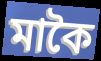
মাকৈ